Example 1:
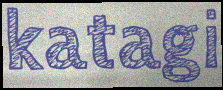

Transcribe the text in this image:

katagi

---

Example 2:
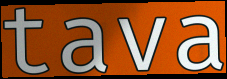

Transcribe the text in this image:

tava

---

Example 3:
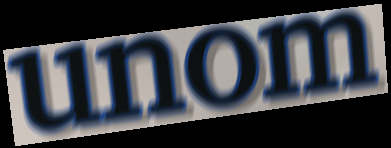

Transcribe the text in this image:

unom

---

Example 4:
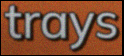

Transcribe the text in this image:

trays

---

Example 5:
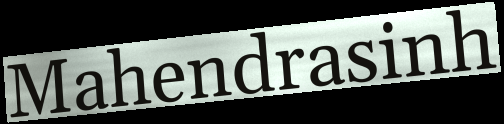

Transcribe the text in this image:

Mahendrasinh